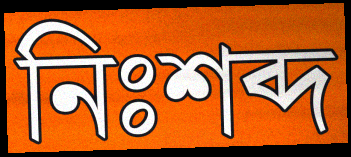
নিঃশব্দ